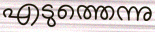
എടുത്തെന്നു